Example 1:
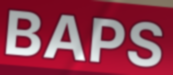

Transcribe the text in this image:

BAPS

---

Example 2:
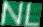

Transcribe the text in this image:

NL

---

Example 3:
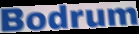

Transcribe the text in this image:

Bodrum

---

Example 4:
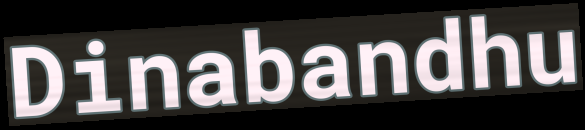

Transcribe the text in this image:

Dinabandhu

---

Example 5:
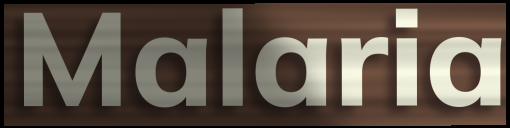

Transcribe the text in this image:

Malaria